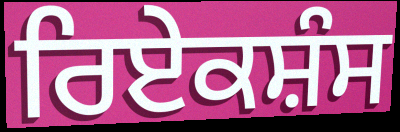
ਰਿਏਕਸ਼ੰਸ